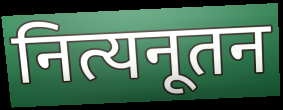
नित्यनूतन